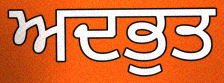
ਅਦਭੁਤ